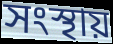
সংস্থায়